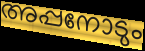
അപ്പനോടും